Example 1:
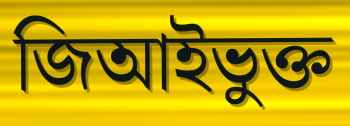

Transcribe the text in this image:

জিআইভুক্ত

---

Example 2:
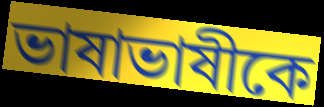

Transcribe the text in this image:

ভাষাভাষীকে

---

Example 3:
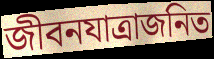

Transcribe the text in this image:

জীবনযাত্রাজনিত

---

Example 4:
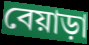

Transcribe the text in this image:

বেয়াড়া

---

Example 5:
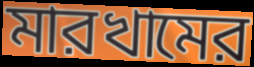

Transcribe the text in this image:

মারখামের